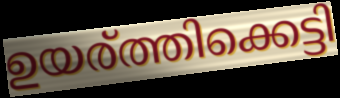
ഉയര്ത്തിക്കെട്ടി